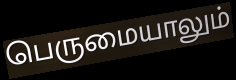
பெருமையாலும்